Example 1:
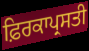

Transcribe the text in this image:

ਫ਼ਿਰਕਾਪ੍ਰਸਤੀ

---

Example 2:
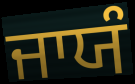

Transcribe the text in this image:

ਜਾਯੰ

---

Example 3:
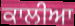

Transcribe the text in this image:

ਕਾਲੀਆ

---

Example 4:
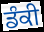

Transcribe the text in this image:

ਡੰਕੀ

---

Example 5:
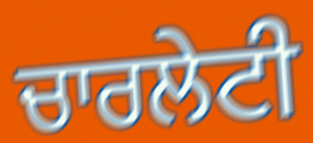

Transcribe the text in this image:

ਚਾਰਲੇਟੀ